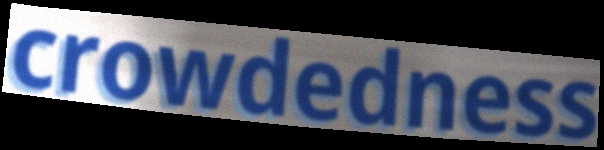
crowdedness